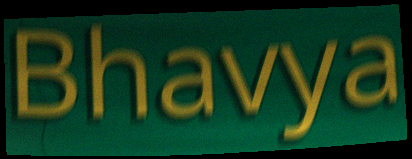
Bhavya